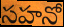
సహనో